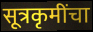
सूत्रकृमींचा